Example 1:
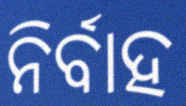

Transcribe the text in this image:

ନିର୍ବାହ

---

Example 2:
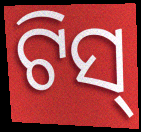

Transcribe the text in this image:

ଟିସ୍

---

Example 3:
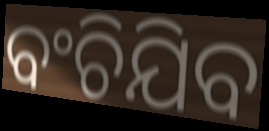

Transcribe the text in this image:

ବଂଚିଯିବ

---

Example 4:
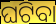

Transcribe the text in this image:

ଘଟିବା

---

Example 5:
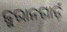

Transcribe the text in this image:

ଜୁରାନଗାର୍ଡ଼